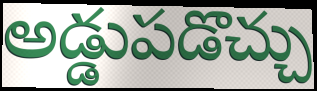
అడ్డుపడొచ్చు